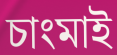
চাংমাই